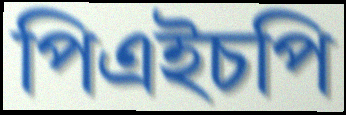
পিএইচপি